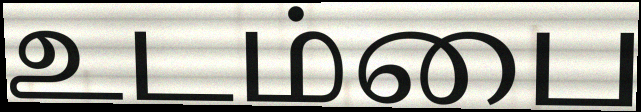
உடம்பை